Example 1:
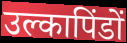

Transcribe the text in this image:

उल्कापिंडों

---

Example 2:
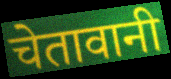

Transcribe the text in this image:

चेतावानी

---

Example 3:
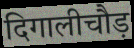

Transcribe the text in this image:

दिगालीचौड़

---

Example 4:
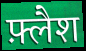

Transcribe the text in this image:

फ़्लैश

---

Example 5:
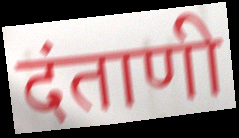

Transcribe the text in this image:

दंताणी